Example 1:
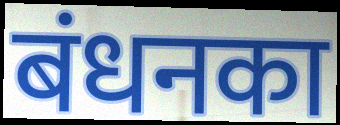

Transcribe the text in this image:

बंधनका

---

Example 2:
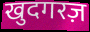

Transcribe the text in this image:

खुदगरज़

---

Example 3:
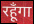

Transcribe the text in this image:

रहूँगा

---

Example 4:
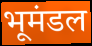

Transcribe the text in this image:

भूमंडल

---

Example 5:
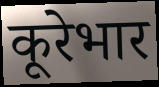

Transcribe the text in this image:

कूरेभार